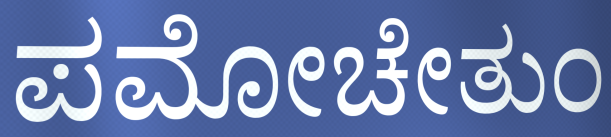
ಪಮೋಚೇತುಂ